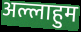
अल्लाहुम